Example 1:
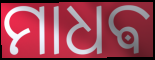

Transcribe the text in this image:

ମାଧଵ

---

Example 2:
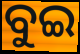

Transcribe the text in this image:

ବୁଇ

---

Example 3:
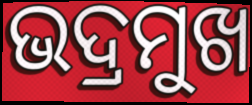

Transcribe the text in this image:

ଭଦ୍ରମୁଖ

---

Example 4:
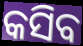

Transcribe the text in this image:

କସିବ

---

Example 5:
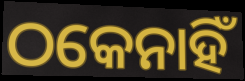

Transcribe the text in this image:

ଠକେନାହିଁ